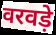
वरवड़े